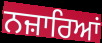
ਨਜ਼ਾਰਿਆਂ